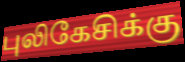
புலிகேசிக்கு